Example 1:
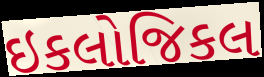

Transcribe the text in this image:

ઇકલોજિકલ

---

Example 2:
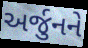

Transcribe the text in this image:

અર્જુનને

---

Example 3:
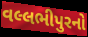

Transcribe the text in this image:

વલ્લભીપુરનો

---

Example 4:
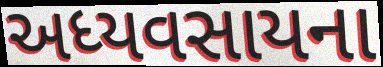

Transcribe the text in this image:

અધ્યવસાયના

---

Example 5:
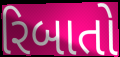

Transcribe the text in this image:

રિબાતો